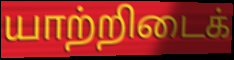
யாற்றிடைக்